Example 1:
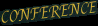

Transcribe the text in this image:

CONFERENCE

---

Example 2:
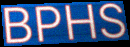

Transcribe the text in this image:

BPHS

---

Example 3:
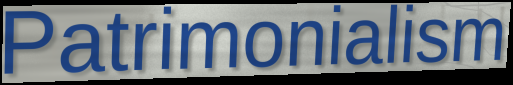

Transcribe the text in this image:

Patrimonialism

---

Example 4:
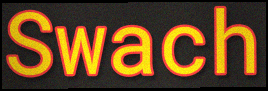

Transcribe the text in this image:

Swach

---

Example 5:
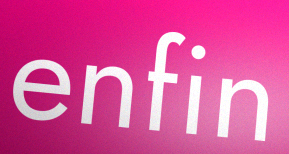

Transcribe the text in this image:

enfin